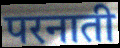
परनाती